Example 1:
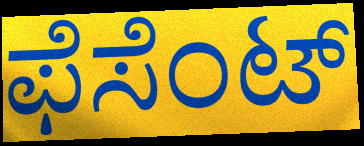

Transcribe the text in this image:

ಫೆಸೆಂಟ್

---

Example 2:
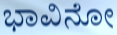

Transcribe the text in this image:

ಭಾವಿನೋ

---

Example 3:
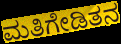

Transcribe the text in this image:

ಮತಿಗೇಡಿತನ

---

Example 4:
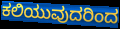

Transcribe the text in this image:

ಕಲಿಯುವುದರಿಂದ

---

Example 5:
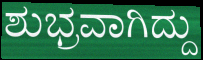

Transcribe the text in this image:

ಶುಭ್ರವಾಗಿದ್ದು